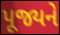
પૂજ્યને